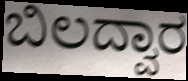
ಬಿಲದ್ವಾರ